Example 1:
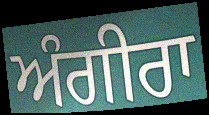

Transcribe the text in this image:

ਅੰਗੀਰਾ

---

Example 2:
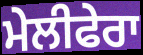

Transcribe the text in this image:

ਮੇਲੀਫੇਰਾ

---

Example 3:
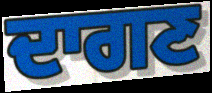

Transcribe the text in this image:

ਦਾਗਣ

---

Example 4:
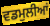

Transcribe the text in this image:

ਵਡਮੁਲੀਆਂ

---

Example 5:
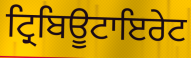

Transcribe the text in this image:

ਟ੍ਰਿਬਿਊਟਾਇਰੇਟ